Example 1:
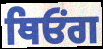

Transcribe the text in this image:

ਥਿਓਂਗ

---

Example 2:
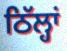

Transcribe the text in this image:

ਠਿੱਲ੍ਹਾਂ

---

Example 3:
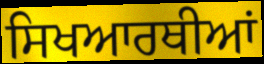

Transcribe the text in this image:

ਸਿਖਆਰਥੀਆਂ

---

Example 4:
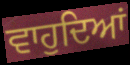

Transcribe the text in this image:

ਵਾਹੁਦਿਆਂ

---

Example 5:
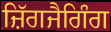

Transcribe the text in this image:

ਜ਼ਿੱਗਜੈਗਿੰਗ